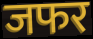
जफर